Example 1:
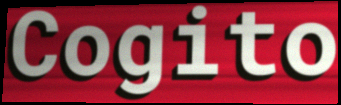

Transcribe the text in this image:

Cogito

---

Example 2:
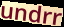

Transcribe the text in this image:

undrr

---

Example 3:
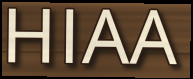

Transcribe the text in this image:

HIAA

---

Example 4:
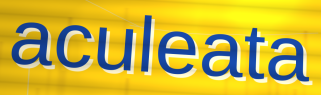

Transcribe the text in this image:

aculeata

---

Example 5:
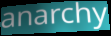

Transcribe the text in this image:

anarchy